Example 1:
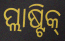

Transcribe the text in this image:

ପ୍ଲାଷ୍ଟିକ୍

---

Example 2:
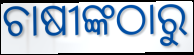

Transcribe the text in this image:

ଚାଷୀଙ୍କଠାରୁ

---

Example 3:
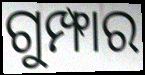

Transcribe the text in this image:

ଗୁମ୍ଫାର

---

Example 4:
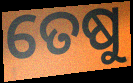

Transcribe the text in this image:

ତେଷୁ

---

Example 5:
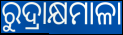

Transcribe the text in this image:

ରୁଦ୍ରାକ୍ଷମାଳା